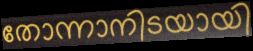
തോന്നാനിടയായി